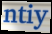
ntiy